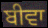
ਬੀਵਾ